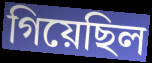
গিয়েছিল